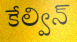
కేల్విన్